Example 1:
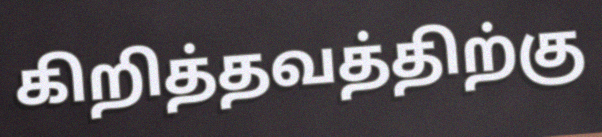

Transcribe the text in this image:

கிறித்தவத்திற்கு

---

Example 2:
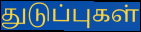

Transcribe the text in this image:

துடுப்புகள்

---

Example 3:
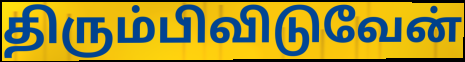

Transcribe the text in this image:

திரும்பிவிடுவேன்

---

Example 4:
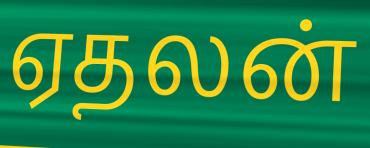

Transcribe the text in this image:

ஏதலன்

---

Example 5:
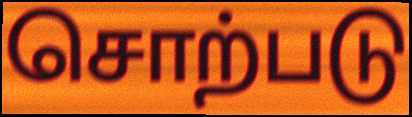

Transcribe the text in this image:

சொற்படு